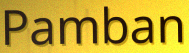
Pamban